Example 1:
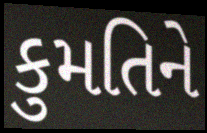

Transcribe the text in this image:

કુમતિને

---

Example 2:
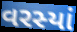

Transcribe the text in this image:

વરસ્યાં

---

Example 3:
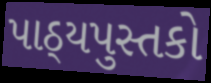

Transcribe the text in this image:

પાઠ્યપુસ્તકો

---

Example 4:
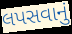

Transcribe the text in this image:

લપસવાનું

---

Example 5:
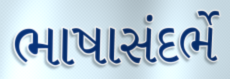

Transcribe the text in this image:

ભાષાસંદર્ભે